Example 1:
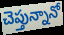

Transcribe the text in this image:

చెప్తున్నానో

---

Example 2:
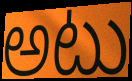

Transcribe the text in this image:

అటు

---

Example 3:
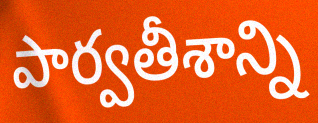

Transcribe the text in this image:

పార్వతీశాన్ని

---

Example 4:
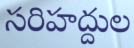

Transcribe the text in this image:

సరిహద్దుల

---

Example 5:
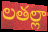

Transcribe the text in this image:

లతల్లా